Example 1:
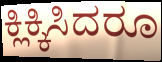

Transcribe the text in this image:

ಕ್ಲಿಕ್ಕಿಸಿದರೂ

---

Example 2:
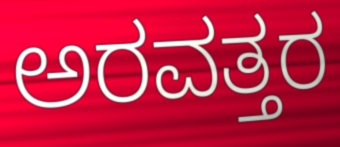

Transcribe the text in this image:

ಅರವತ್ತರ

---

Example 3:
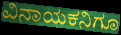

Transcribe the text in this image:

ವಿನಾಯಕನಿಗೂ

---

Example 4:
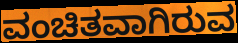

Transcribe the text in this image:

ವಂಚಿತವಾಗಿರುವ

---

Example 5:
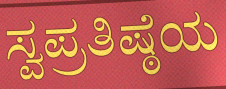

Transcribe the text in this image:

ಸ್ವಪ್ರತಿಷ್ಠೆಯ